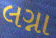
લગ્ના